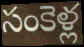
సంకెళ్ల